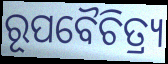
ରୂପବୈଚିତ୍ର୍ୟ